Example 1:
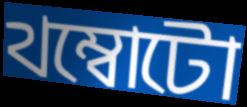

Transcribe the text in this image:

থম্বোটো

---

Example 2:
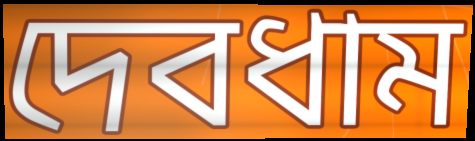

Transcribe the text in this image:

দেবধাম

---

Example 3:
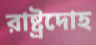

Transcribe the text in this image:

রাষ্ট্রদোহ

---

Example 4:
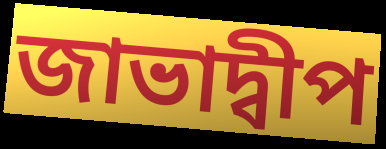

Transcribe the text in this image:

জাভাদ্বীপ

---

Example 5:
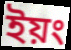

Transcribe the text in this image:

ইয়ং